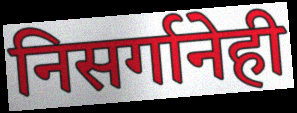
निसर्गानेही